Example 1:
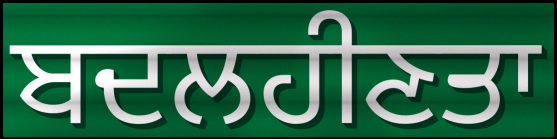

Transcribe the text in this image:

ਬਦਲਹੀਣਤਾ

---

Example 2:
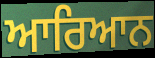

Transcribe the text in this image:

ਆਰਿਆਨ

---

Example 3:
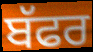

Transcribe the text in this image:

ਬੱਫਰ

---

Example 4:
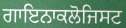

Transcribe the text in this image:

ਗਾਇਨਾਕਲੋਜਿਸਟ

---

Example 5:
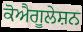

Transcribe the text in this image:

ਕੋਐਗੂਲੇਸ਼ਨ